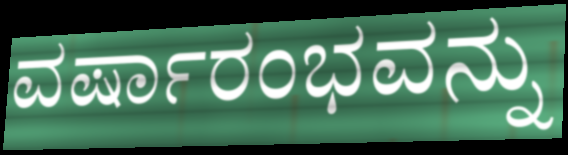
ವರ್ಷಾರಂಭವನ್ನು